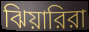
ঝিয়ারিরা